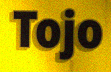
Tojo